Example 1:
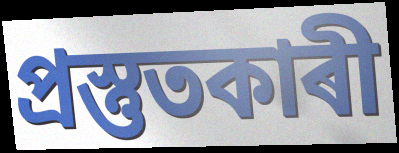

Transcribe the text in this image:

প্ৰস্তুতকাৰী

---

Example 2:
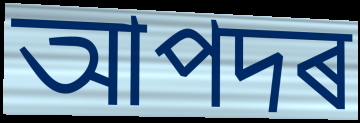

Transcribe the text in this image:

আপদৰ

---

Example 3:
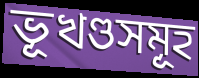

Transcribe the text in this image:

ভূখণ্ডসমূহ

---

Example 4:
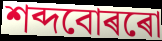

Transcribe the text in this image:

শব্দবোৰৰো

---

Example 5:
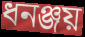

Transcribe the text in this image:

ধনঞ্জয়